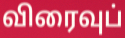
விரைவுப்